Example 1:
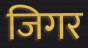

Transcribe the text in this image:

जिगर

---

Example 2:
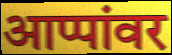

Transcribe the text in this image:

आप्पांवर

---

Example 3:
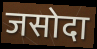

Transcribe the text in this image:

जसोदा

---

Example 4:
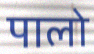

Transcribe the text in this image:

पालो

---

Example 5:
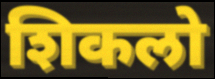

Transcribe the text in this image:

शिकलो